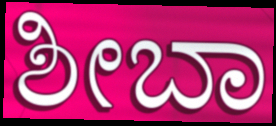
ಶೀಬಾ